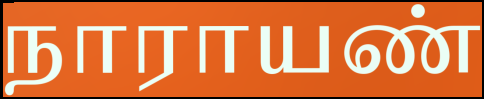
நாராயண்